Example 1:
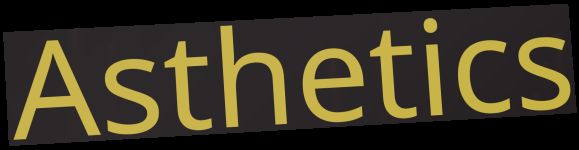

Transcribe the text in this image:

Asthetics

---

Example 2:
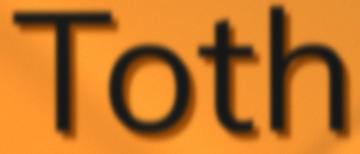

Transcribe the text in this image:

Toth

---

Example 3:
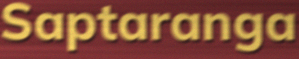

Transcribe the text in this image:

Saptaranga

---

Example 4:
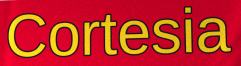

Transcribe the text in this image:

Cortesia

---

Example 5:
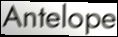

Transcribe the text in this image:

Antelope